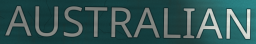
AUSTRALIAN